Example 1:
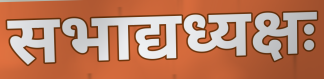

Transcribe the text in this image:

सभाद्यध्यक्षः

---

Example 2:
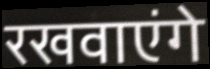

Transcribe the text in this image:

रखवाएंगे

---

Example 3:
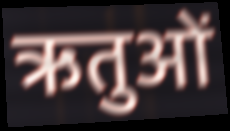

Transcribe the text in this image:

ऋतुओं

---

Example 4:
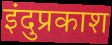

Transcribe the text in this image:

इंदुप्रकाश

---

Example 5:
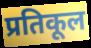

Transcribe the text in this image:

प्रतिकूल